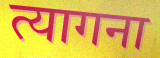
त्यागना